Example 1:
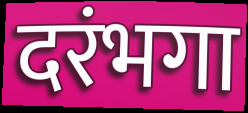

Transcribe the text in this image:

दरंभगा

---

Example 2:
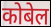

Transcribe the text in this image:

कोबेल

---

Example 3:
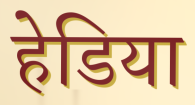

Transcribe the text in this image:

हेडिया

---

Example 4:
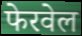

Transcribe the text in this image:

फेरवेल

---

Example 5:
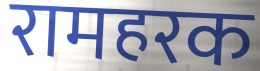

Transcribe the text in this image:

रामहरक